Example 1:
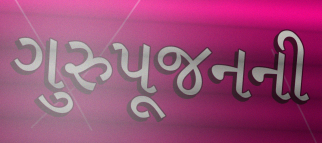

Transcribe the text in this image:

ગુરુપૂજનની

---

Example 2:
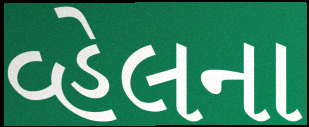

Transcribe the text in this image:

વ્હેલના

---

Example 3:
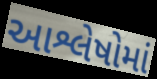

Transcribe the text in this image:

આશ્લેષોમાં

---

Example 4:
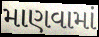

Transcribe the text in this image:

માણવામાં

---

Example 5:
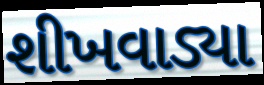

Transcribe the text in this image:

શીખવાડ્યા